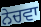
ਨੇਚਵਾ